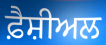
ਫ਼ੈਸ਼ੀਅਲ